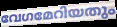
വേഗമേറിയതും